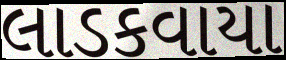
લાડકવાયા